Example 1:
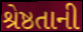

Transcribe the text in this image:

શ્રેષ્ઠતાની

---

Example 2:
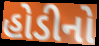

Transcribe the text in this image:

હોડીનો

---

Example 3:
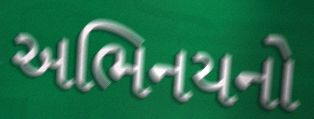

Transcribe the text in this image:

અભિનયનો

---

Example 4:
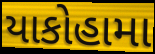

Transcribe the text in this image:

યાકોહામા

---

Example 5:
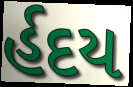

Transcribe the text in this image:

ર્હદય